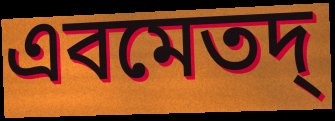
এবমেতদ্